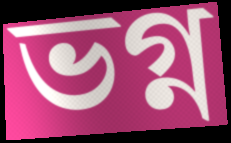
ভগ্ন